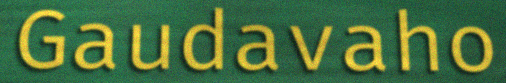
Gaudavaho